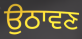
ਉਠਾਵਣ